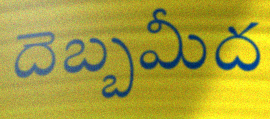
దెబ్బమీద